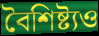
বৈশিষ্ট্যও